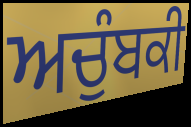
ਅਚੁੰਬਕੀ